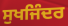
ਸੁਖਜਿੰਦਰ